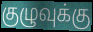
குழுவுக்கு